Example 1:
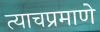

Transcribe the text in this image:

त्याचप्रमाणे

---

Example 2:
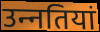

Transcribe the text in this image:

उन्नतियां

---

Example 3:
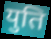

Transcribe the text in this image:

युति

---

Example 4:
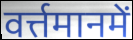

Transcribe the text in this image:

वर्त्तमानमें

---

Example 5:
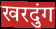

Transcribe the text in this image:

खरदुंग